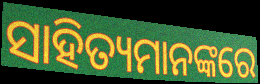
ସାହିତ୍ୟମାନଙ୍କରେ